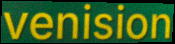
venision